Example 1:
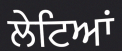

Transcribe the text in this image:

ਲੇਟਿਆਂ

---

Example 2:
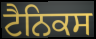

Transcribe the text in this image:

ਟੈਨਿਕਸ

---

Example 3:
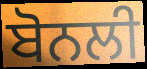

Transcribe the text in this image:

ਬੋਨਲੀ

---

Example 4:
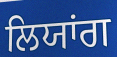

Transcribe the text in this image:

ਲਿਯਾਂਗ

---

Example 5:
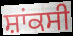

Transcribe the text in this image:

ਸ਼ਾਂਕਸੀ